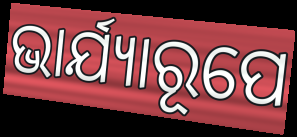
ଭାର୍ଯ୍ୟାରୂପେ